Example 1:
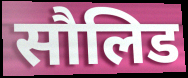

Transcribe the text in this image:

सौलिड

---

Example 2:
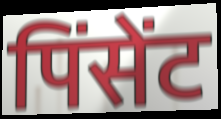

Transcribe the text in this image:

पिंसेंट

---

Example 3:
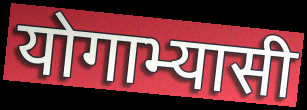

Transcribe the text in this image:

योगाभ्यासी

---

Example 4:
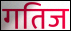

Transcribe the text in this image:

गतिज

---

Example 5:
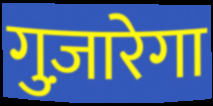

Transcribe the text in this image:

गुज़ारेगा